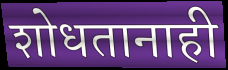
शोधतानाही